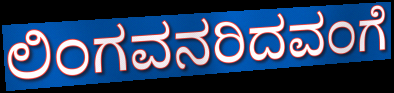
ಲಿಂಗವನರಿದವಂಗೆ